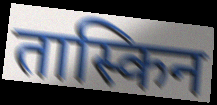
तास्किन